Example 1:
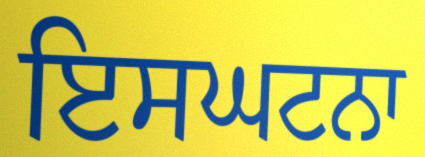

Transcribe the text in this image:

ਇਸਘਟਨਾ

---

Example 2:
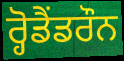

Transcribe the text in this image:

ਰ੍ਹੋਡੈਂਡਰੌਨ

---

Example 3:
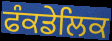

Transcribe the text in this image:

ਫੰਕਡੇਲਿਕ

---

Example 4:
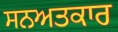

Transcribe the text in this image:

ਸਨਅਤਕਾਰ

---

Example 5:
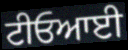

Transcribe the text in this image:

ਟੀਓਆਈ